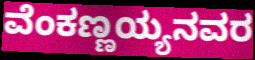
ವೆಂಕಣ್ಣಯ್ಯನವರ